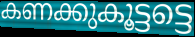
കണക്കുകൂട്ടട്ടെ